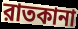
রাতকানা